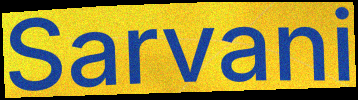
Sarvani